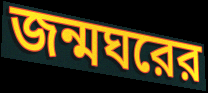
জন্মঘরের